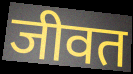
जीवत